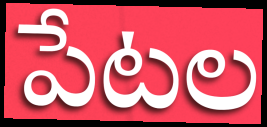
పేటల